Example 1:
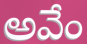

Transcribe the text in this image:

అవేం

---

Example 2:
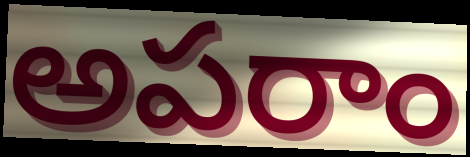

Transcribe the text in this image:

అపరాం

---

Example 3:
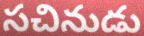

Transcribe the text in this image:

సచినుడు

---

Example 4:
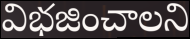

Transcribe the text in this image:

విభజించాలని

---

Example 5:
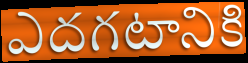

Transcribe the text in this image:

ఎదగటానికి